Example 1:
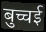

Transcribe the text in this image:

बुच्चई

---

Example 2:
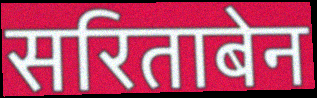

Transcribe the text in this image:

सरिताबेन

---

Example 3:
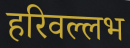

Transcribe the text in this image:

हरिवल्लभ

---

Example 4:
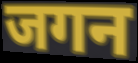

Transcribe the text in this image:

जगन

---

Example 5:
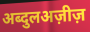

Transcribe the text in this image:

अब्दुलअज़ीज़